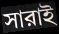
সারাই